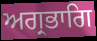
ਅਗ੍ਰਭਾਗਿ